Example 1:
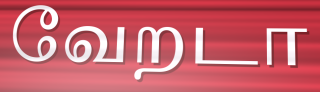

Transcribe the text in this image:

வேறடா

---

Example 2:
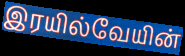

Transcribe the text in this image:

இரயில்வேயின்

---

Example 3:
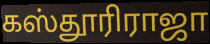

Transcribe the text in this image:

கஸ்தூரிராஜா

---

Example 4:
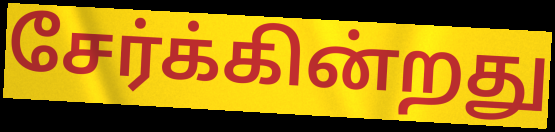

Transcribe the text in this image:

சேர்க்கின்றது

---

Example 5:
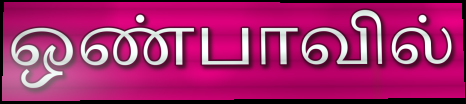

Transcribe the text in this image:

ஒண்பாவில்